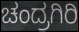
ಚಂದ್ರಗಿರಿ